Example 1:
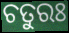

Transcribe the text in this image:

ଚତୁରଃ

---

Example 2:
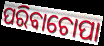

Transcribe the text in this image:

ପରିବାଚୋପା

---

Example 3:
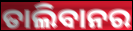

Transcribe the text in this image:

ତାଲିବାନର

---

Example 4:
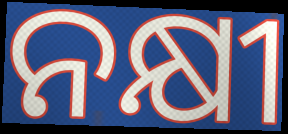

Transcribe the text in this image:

ନକ୍ଷୀ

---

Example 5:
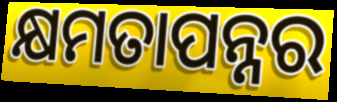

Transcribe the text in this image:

କ୍ଷମତାପନ୍ନର